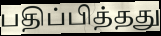
பதிப்பித்தது